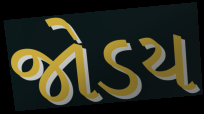
જોડય